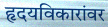
हृदयविकारांवर